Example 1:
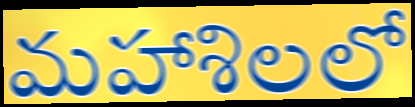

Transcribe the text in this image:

మహాశిలలో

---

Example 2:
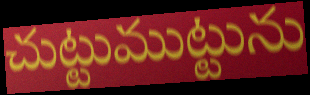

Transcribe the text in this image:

చుట్టుముట్టును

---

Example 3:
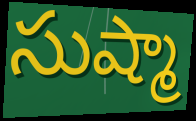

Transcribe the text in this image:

సుష్మా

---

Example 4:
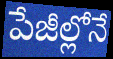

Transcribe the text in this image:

పేజీల్లోనే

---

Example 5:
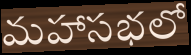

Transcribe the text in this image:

మహాసభలో